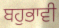
ਬਹੁਭਾਵੀ